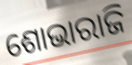
ଶୋଭାରାଜି